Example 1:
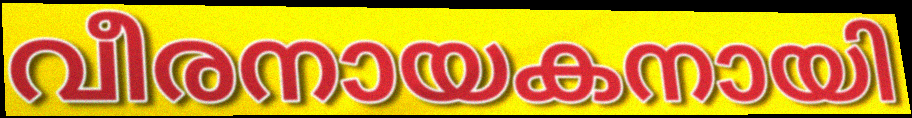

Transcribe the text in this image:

വീരനായകനായി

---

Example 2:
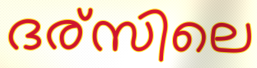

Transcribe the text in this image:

ദര്സിലെ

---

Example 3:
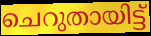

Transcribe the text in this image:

ചെറുതായിട്ട്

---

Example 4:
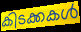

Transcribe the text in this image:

കിടക്കകൾ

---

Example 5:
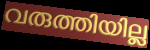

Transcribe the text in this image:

വരുത്തിയില്ല